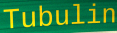
Tubulin